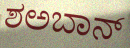
ಶಅಬಾನ್